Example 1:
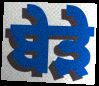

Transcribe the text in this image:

ਬੇੜੇ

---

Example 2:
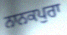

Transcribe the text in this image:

ਨਾਨਕਪੁਰਾ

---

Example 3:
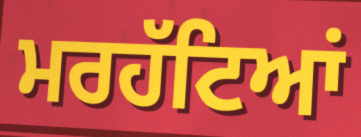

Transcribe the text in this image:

ਮਰਹੱਟਿਆਂ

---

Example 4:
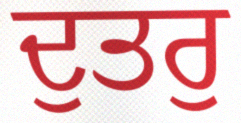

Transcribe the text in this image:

ਦੁਤਰੁ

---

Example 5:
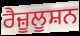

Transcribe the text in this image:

ਰੈਜ਼ੂਲੂਸ਼ਨ